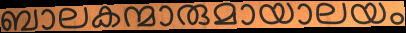
ബാലകന്മാരുമായാലയം